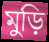
মুড়ি